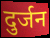
दुर्जन